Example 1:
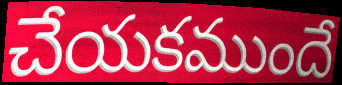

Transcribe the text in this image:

చేయకముందే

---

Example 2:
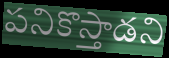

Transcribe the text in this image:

పనికొస్తాడని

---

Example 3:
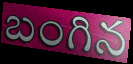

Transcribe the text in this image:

బంగిన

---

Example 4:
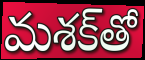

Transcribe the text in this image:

మశక్‌తో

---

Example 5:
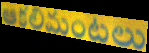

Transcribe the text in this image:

ఆకలిమంటలు